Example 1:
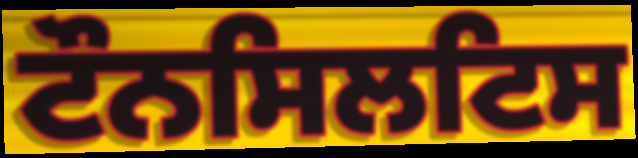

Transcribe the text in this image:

ਟੌਨਸਿਲਟਿਸ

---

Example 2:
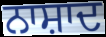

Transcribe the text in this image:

ਨਾਸ਼ਾਦ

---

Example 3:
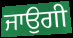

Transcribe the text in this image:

ਜਾਉਗੀ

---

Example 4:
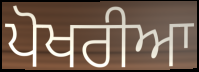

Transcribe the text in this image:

ਪੋਖਰੀਆ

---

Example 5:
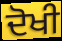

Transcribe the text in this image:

ਦੋਖੀ